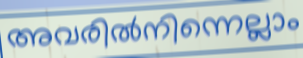
അവരിൽനിന്നെല്ലാം